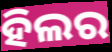
ହିଲର